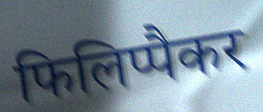
फिलिप्पैकर